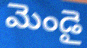
మెండై